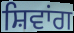
ਸ਼ਿਵਾਂਗ